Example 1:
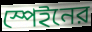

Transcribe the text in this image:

স্পেইনের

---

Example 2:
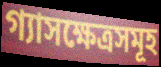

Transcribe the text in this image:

গ্যাসক্ষেত্রসমূহ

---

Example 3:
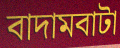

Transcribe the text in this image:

বাদামবাটা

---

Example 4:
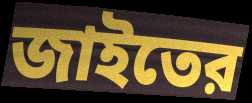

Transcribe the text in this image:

জাইতের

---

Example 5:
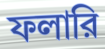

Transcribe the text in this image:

ফলারি